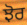
ਝੋਰ